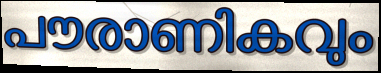
പൗരാണികവും